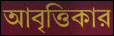
আবৃত্তিকার